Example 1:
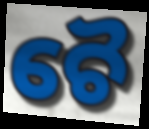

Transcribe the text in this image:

ଚୈ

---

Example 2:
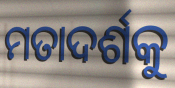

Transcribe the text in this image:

ମତାଦର୍ଶକୁ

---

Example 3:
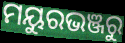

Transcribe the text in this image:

ମୟୁରଭଞ୍ଜରୁ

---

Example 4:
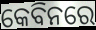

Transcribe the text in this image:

କେବିନରେ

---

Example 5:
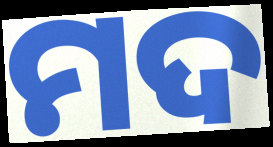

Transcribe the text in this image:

ମଦ